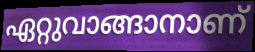
ഏറ്റുവാങ്ങാനാണ്